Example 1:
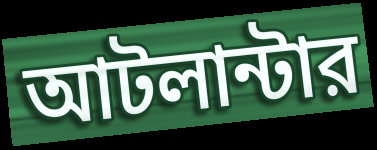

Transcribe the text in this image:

আটলান্টার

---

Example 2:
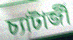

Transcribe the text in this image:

চ্যাটার্জী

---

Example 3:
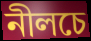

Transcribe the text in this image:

নীলচে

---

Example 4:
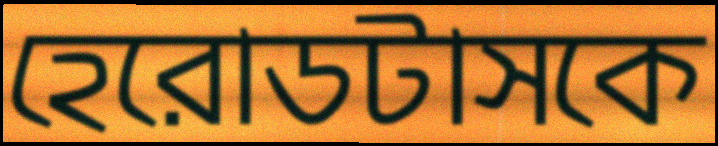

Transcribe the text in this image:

হেরোডটাসকে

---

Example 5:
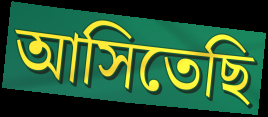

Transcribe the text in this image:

আসিতেছি